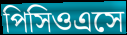
পিসিওএসে